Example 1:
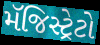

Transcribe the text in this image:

મૅજિસ્ટ્રેટો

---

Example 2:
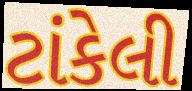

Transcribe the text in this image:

ટાંકેલી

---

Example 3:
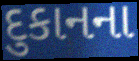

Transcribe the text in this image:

દુકાનના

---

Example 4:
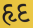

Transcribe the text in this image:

હૃદ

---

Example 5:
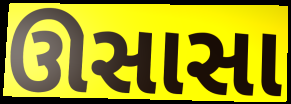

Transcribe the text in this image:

ઊસાસા